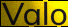
Valo